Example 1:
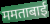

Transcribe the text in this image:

ममताबाई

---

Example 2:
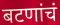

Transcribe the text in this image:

बटणांचं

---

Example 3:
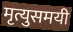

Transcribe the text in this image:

मृत्युसमयी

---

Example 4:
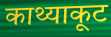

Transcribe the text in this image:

काथ्याकूट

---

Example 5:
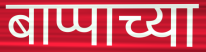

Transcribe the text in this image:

बाप्पाच्या